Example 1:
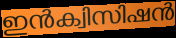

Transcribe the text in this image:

ഇൻക്വിസിഷൻ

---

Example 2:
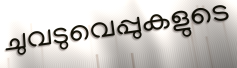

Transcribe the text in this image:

ചുവടുവെപ്പുകളുടെ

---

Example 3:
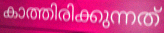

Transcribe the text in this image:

കാത്തിരിക്കുന്നത്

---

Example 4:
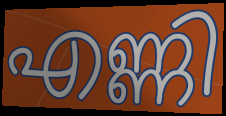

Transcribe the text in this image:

എണ്ണി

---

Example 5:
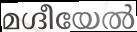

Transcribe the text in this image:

മഗ്ദീയേൽ